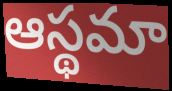
ఆస్థమా